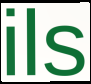
ils